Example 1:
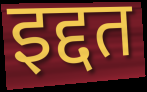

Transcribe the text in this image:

इद्दत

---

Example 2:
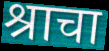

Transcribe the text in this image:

श्राचा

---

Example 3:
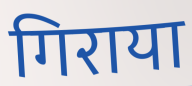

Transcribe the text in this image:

गिराया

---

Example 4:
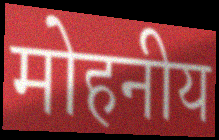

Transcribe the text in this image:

मोहनीय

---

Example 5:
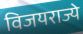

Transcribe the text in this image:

विजयराज्ये